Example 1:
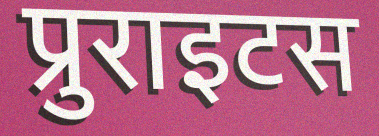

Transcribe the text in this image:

प्रुराइटस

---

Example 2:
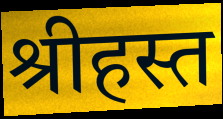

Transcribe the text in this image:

श्रीहस्त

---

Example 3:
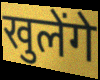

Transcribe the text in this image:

खुलेंगे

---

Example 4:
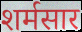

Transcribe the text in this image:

शर्मसार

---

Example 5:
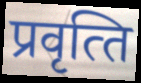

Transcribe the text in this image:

प्रवृत्‍ति